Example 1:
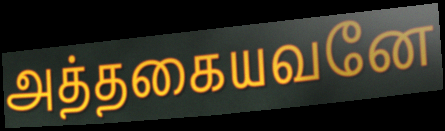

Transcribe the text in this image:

அத்தகையவனே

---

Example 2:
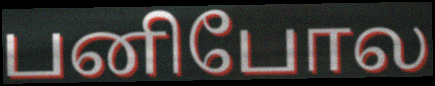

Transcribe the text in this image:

பனிபோல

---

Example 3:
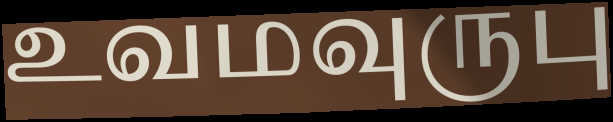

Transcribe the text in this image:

உவமவுருபு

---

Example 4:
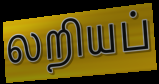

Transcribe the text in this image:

லறியப்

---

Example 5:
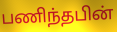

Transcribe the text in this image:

பணிந்தபின்